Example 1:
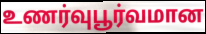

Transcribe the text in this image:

உணர்வுபூர்வமான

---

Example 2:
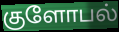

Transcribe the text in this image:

குளோபல்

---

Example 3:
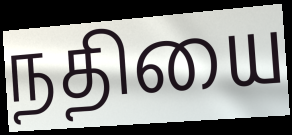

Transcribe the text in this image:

நதியை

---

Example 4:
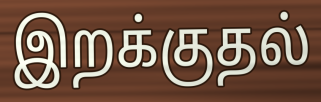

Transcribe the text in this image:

இறக்குதல்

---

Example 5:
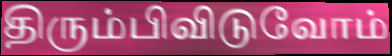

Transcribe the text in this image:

திரும்பிவிடுவோம்